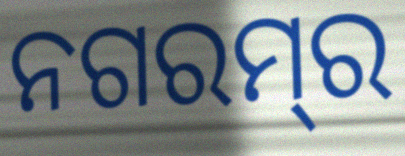
ନଗରମ୍‌ର